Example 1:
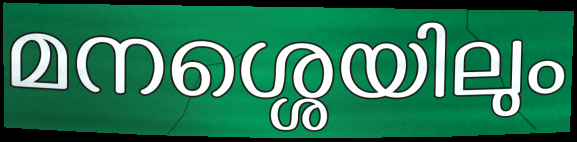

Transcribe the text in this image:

മനശ്ശെയിലും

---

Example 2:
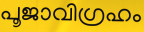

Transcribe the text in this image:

പൂജാവിഗ്രഹം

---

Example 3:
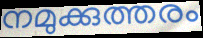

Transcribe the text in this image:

നമുക്കുത്തരം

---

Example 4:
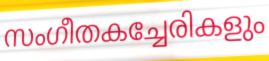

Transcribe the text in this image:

സംഗീതകച്ചേരികളും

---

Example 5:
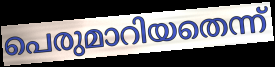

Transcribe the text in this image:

പെരുമാറിയതെന്ന്